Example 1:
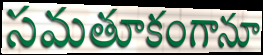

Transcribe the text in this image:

సమతూకంగానూ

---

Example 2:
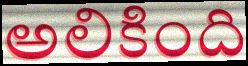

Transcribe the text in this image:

అలికింది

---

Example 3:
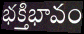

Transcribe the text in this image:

భక్తిభావం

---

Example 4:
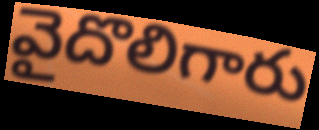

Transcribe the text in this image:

వైదొలిగారు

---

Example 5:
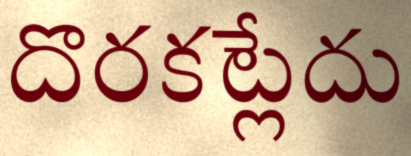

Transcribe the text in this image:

దొరకట్లేదు